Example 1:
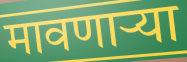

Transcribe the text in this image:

मावणाऱ्या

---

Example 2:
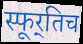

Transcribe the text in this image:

स्फूर्तिच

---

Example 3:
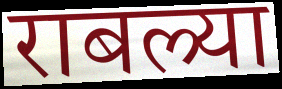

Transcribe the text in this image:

राबल्या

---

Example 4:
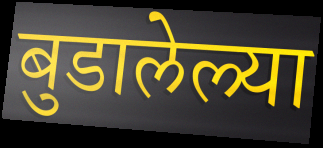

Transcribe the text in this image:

बुडालेल्या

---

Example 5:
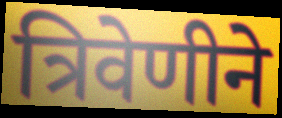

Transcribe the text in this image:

त्रिवेणीने